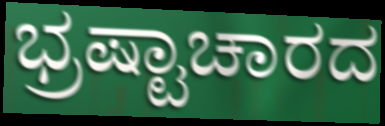
ಭ್ರಷ್ಟಾಚಾರದ